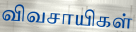
விவசாயிகள்